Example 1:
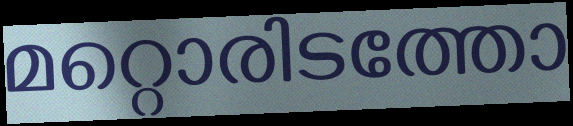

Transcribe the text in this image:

മറ്റൊരിടത്തോ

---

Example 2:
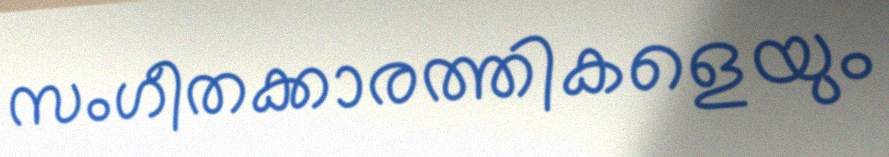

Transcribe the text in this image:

സംഗീതക്കാരത്തികളെയും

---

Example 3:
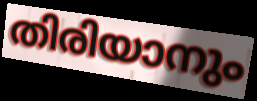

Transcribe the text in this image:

തിരിയാനും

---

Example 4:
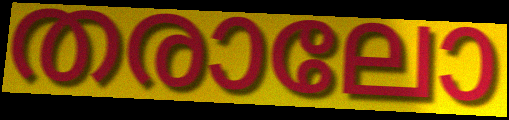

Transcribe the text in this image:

തരാലോ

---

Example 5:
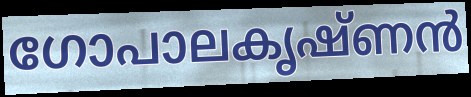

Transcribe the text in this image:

ഗോപാലകൃഷ്ണൻ